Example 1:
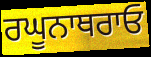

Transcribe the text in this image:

ਰਘੂਨਾਥਰਾਓ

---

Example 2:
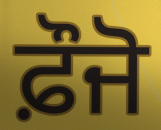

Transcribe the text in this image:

ਫ਼ੌਜੋ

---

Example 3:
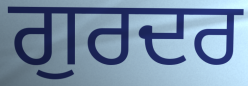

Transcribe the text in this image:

ਗੁਰਦਰ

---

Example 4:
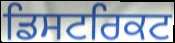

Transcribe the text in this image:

ਡਿਸਟਰਿਕਟ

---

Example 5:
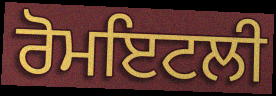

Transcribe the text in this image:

ਰੋਮਇਟਲੀ